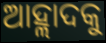
ଆହ୍ଲାଦକୁ